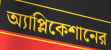
অ্যাপ্লিকেশানের